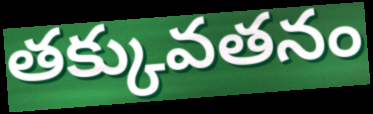
తక్కువతనం